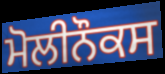
ਮੋਲੀਨੌਕਸ